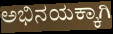
ಅಭಿನಯಕ್ಕಾಗಿ